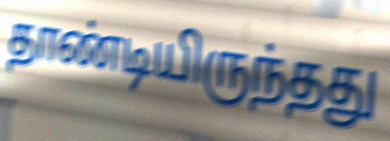
தாண்டியிருந்தது